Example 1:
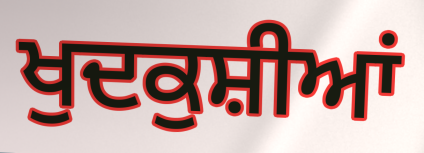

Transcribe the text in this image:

ਖੁਦਕੁਸ਼ੀਆਂ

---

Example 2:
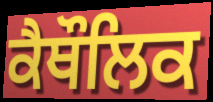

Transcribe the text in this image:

ਕੈਥੌਲਿਕ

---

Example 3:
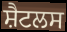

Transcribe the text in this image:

ਸ਼ੈਟਲਸ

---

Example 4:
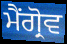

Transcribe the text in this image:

ਮੈਂਗ੍ਰੋਵ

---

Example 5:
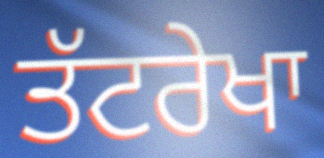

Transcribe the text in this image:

ਤੱਟਰੇਖਾ